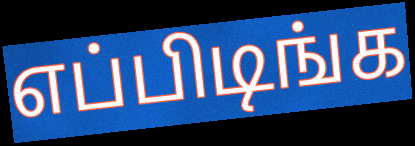
எப்பிடிங்க